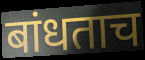
बांधताच